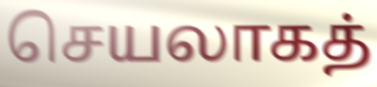
செயலாகத்